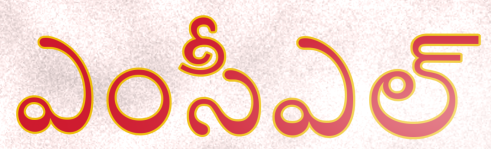
ఎంసీఎల్